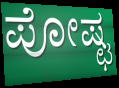
ಪೋಷ್ಟ